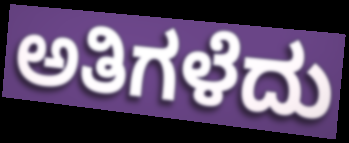
ಅತಿಗಳೆದು